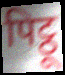
पिट्ठू